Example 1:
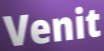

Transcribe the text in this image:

Venit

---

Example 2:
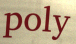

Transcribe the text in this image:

poly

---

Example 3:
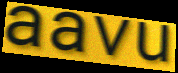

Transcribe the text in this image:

aavu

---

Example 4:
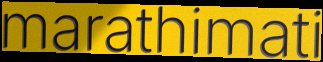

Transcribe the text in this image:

marathimati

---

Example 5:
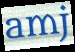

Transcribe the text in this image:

amj